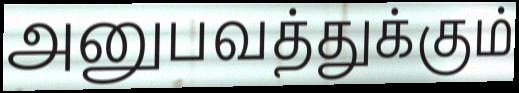
அனுபவத்துக்கும்